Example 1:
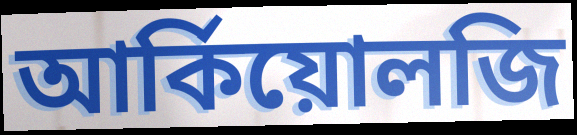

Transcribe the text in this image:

আর্কিয়োলজি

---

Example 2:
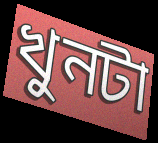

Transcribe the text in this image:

খুনটা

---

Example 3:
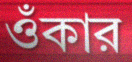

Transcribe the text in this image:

ওঁকার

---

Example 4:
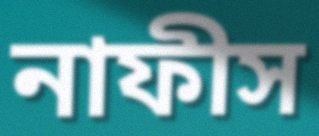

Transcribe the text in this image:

নাফীস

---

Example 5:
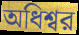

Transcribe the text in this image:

অধিশ্বর